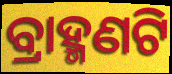
ବ୍ରାହ୍ମଣଟି